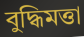
বুদ্ধিমত্তা